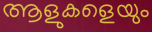
ആളുകളെയും